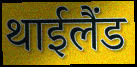
थाईलैंड